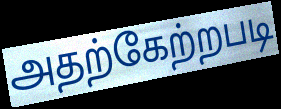
அதற்கேற்றபடி